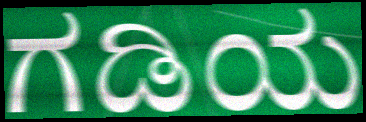
ಗಡಿಯ